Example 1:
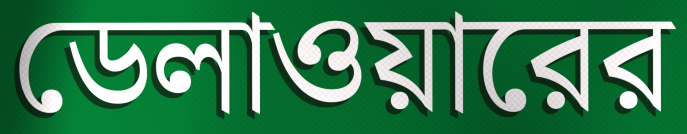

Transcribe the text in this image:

ডেলাওয়ারের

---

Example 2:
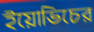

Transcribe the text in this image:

ইয়োভিচের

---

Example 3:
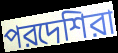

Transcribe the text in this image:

পরদেশিরা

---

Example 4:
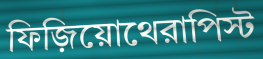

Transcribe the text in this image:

ফিজ়িয়োথেরাপিস্ট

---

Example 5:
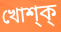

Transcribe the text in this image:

খোশ্ক্